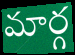
మార్గ